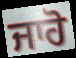
ਜਾਹੋ